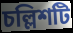
চল্লিশটি